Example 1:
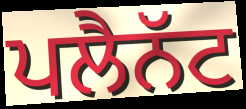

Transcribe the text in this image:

ਪਲੈਨੱਟ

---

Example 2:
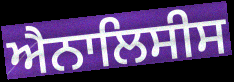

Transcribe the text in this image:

ਐਨਾਲਿਸੀਸ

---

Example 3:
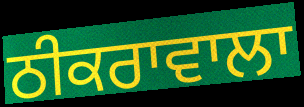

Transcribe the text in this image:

ਠੀਕਰਾਵਾਲਾ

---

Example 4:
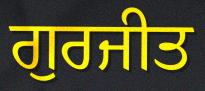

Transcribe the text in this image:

ਗੁਰਜੀਤ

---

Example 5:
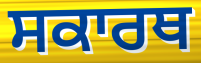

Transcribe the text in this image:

ਸਕਾਰਥ